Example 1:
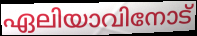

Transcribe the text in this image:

ഏലിയാവിനോട്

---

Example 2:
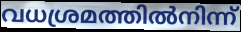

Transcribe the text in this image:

വധശ്രമത്തിൽനിന്ന്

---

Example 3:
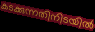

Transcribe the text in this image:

കടക്കുന്നതിനിടയിൽ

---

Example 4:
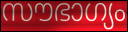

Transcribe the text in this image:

സൗഭാഗ്യം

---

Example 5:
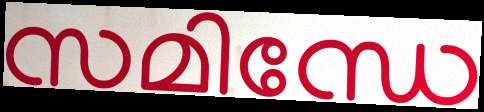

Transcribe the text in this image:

സമിന്ധേ